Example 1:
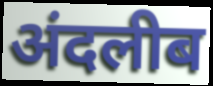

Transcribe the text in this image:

अंदलीब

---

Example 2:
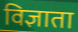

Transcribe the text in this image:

विज्ञाता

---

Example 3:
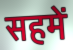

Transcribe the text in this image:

सहमें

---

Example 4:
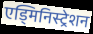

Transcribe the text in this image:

एड्मिनिस्ट्रेशन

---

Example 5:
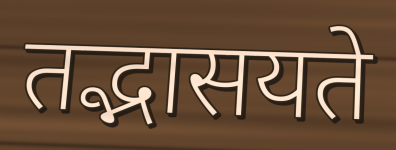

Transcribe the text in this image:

तद्भासयते